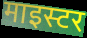
माइस्टर